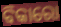
ବିକାରୋ